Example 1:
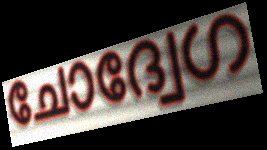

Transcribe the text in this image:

ചോദ്വേഗ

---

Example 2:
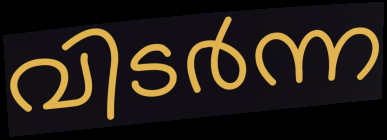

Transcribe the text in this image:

വിടർന്ന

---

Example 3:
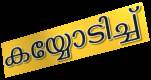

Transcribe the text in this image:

കയ്യോടിച്ച്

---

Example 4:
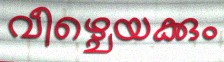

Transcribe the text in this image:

വീഴ്ചെയക്കും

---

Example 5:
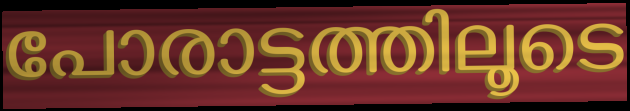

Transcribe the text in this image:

പോരാട്ടത്തിലൂടെ